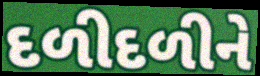
દળીદળીને